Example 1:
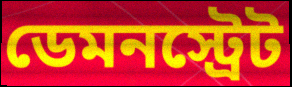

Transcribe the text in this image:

ডেমনস্ট্রেট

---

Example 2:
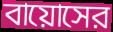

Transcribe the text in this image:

বায়োসের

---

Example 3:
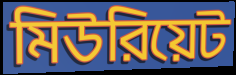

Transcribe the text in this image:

মিউরিয়েট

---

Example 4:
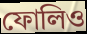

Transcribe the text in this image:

ফোলিও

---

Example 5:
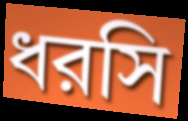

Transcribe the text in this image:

ধরসি